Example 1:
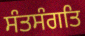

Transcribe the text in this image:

ਸੰਤਸੰਗਤਿ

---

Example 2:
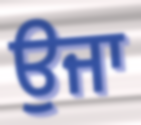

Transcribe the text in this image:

ਉਜਾ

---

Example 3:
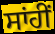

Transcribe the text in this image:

ਸਾਂਹੀਂ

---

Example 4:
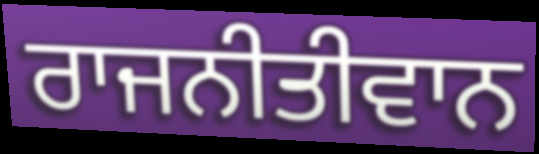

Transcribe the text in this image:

ਰਾਜਨੀਤੀਵਾਨ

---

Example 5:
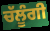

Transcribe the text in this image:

ਚੱਲੂੰਗੀ